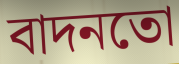
বাদনতো